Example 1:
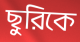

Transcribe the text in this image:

ছুরিকে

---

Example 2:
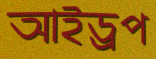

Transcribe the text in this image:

আইড্রপ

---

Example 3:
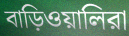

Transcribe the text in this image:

বাড়িওয়ালিরা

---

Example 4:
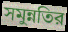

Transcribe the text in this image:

সমুন্নতির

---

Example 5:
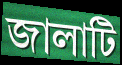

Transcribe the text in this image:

জালাটি